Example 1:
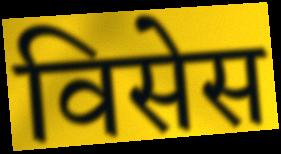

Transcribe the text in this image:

विसेस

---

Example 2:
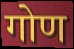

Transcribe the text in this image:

गोण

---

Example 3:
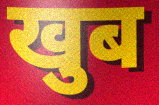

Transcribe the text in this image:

खुब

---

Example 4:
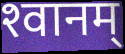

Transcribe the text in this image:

श्वानम्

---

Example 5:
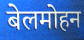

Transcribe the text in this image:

बेलमोहन